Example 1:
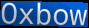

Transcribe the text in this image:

Oxbow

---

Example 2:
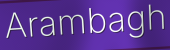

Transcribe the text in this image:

Arambagh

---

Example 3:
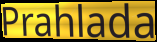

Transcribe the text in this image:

Prahlada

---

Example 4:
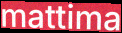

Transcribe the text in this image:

mattima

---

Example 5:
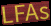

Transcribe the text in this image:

LFAs